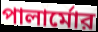
পালার্মোর